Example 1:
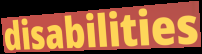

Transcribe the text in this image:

disabilities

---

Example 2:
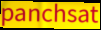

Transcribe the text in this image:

panchsat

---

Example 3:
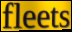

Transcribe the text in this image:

fleets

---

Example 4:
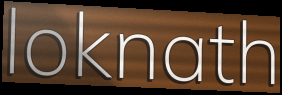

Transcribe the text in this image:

loknath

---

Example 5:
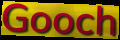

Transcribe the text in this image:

Gooch